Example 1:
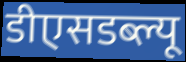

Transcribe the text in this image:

डीएसडब्ल्यू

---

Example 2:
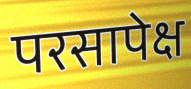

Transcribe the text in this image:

परसापेक्ष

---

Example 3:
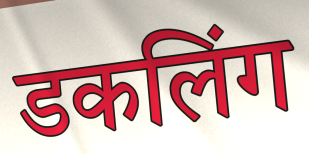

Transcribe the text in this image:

डकलिंग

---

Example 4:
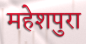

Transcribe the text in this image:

महेशपुरा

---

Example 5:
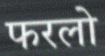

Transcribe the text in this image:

फरलो